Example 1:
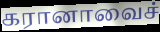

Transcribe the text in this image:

கரானாவைச்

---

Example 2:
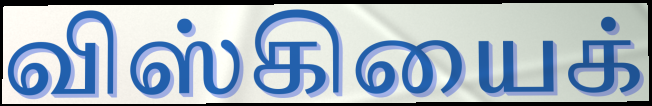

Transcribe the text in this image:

விஸ்கியைக்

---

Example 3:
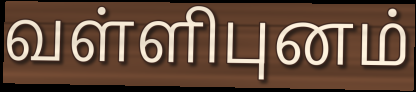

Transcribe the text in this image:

வள்ளிபுனம்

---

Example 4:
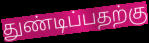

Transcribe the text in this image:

துண்டிப்பதற்கு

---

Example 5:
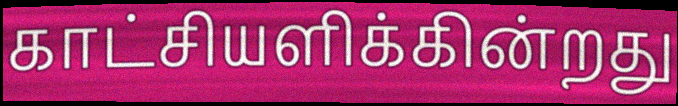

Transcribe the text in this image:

காட்சியளிக்கின்றது